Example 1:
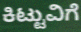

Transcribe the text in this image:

ಕಿಟ್ಟುವಿಗೆ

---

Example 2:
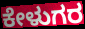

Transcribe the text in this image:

ಕೇಳುಗರ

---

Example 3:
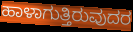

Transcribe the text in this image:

ಹಾಳಾಗುತ್ತಿರುವುದರ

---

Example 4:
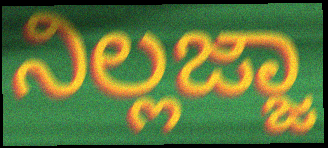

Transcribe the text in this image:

ನಿಲ್ಲಜ್ಜಾ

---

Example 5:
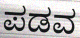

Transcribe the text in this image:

ಪಡವ